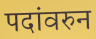
पदांवरुन